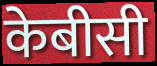
केबीसी